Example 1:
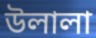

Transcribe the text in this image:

উলালা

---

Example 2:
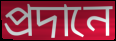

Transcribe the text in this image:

প্রদানে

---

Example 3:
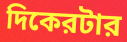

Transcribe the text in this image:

দিকেরটার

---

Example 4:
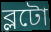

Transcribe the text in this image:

ব্লটো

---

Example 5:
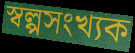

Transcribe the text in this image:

স্বল্পসংখ্যক